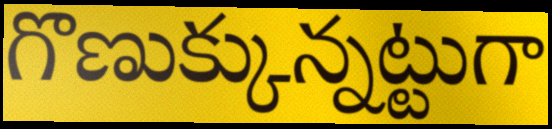
గొణుక్కున్నట్టుగా